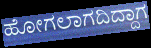
ಹೋಗಲಾಗದಿದ್ದಾಗ